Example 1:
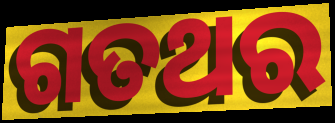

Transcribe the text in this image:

ଗତଥର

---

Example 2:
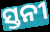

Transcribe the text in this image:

ସ୍ତନୀ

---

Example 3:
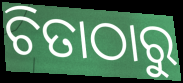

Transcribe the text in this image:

ଚିତାଠାରୁ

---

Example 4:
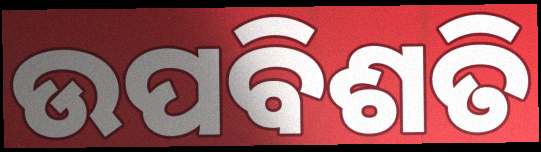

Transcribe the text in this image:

ଉପବିଶତି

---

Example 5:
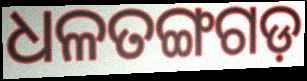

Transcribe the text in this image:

ଧଳତଙ୍ଗଗଡ଼